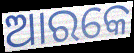
ଆରକେ